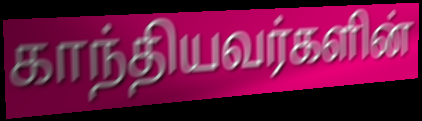
காந்தியவர்களின்